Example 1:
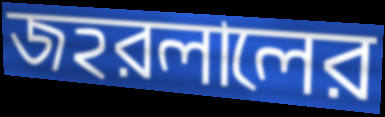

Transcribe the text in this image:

জহরলালের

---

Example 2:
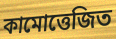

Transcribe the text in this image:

কামোত্তেজিত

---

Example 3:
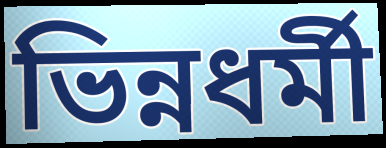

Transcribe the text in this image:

ভিন্নধর্মী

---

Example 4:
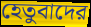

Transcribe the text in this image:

হেতুবাদের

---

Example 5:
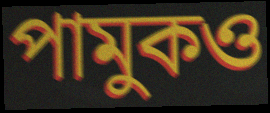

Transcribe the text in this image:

পামুকও